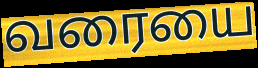
வரையை